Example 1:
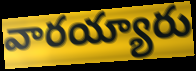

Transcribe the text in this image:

వారయ్యారు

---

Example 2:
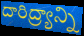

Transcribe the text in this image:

దారిద్ర్యాన్ని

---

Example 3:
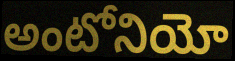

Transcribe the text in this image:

అంటోనియో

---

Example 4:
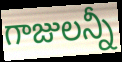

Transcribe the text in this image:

గాజులన్నీ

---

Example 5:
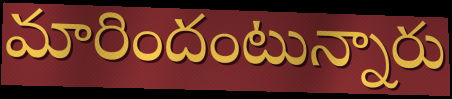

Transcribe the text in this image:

మారిందంటున్నారు